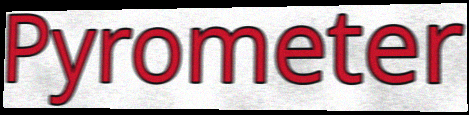
Pyrometer